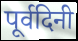
पूर्वदिनी